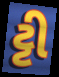
ટ્ટી